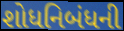
શોધનિબંધની